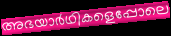
അഭയാർഥികളെപ്പോലെ